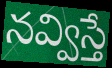
నవ్విస్తే